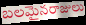
బలమైనరాజులు